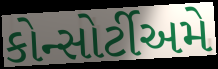
કોન્સોર્ટીઅમે